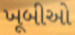
ખૂબીઓ